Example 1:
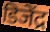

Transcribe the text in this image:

डिजेंद्र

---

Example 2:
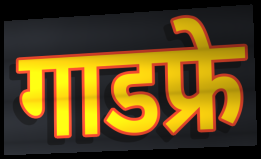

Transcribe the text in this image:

गाडफ्रे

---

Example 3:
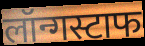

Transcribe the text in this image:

लॉन्गस्टाफ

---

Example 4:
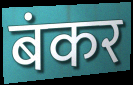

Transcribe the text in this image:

बंकर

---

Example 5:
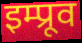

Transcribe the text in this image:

इम्प्रूव